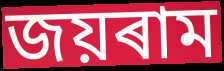
জয়ৰাম